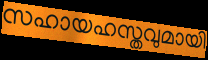
സഹായഹസ്തവുമായി